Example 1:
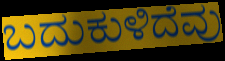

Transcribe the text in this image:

ಬದುಕುಳಿದೆವು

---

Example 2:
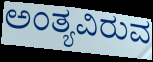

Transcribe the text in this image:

ಅಂತ್ಯವಿರುವ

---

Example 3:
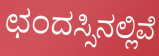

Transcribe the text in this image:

ಛಂದಸ್ಸಿನಲ್ಲಿವೆ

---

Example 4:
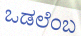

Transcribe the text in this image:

ಒಡಲೆಂಬ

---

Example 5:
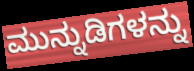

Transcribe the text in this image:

ಮುನ್ನುಡಿಗಳನ್ನು